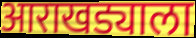
आराखड्याला